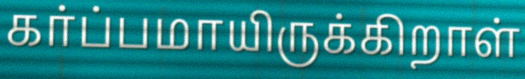
கர்ப்பமாயிருக்கிறாள்